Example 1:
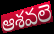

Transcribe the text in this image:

ఆశవలె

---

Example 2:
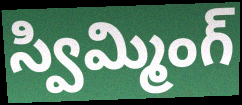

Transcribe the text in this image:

స్విమ్మింగ్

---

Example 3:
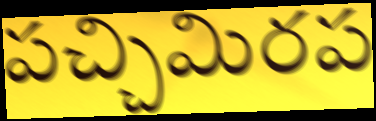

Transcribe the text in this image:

పచ్చిమిరప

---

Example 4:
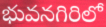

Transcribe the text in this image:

భువనగిరిలో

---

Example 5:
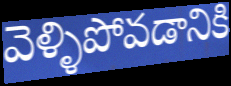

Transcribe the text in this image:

వెళ్ళిపోవడానికి